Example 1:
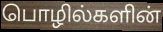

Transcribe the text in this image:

பொழில்களின்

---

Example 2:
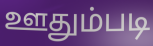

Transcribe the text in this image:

ஊதும்படி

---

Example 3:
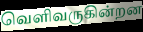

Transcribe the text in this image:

வெளிவருகின்றன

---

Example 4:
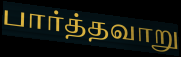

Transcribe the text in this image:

பார்த்தவாறு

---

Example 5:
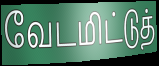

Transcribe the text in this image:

வேடமிட்டுத்